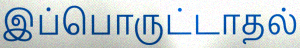
இப்பொருட்டாதல்